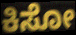
ಕಿಸೋ